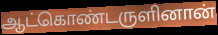
ஆட்கொண்டருளினான்